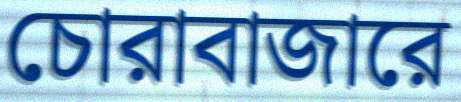
চোরাবাজারে